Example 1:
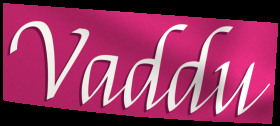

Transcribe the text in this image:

Vaddu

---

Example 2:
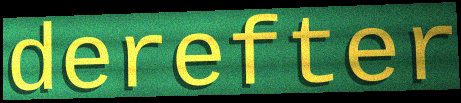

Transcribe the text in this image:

derefter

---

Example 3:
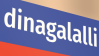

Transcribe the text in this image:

dinagalalli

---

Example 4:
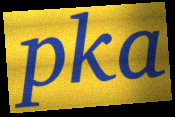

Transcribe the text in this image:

pka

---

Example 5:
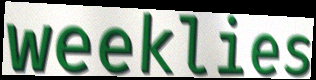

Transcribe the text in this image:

weeklies